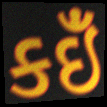
કઇઁં